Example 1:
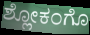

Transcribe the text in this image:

ಶ್ಲೋಕಂಗೊ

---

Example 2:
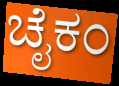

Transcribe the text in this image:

ಚೈಕಂ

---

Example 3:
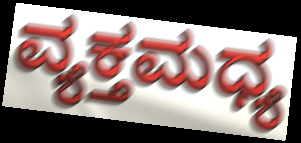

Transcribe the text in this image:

ವ್ಯಕ್ತಮಧ್ಯ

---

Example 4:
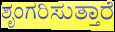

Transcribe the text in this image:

ಶೃಂಗರಿಸುತ್ತಾರೆ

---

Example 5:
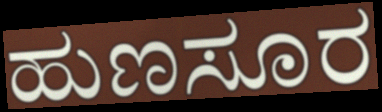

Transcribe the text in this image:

ಹುಣಸೂರ